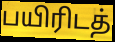
பயிரிடத்